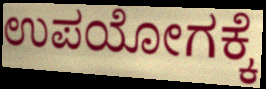
ಉಪಯೋಗಕ್ಕೆ